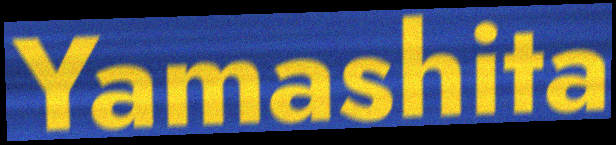
Yamashita